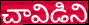
చావిడిని